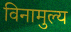
विनामुल्य